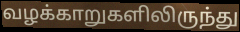
வழக்காறுகளிலிருந்து